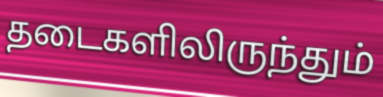
தடைகளிலிருந்தும்